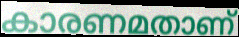
കാരണമതാണ്